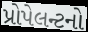
પ્રોપેલન્ટનો